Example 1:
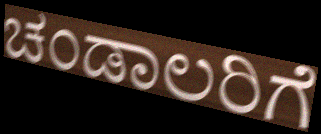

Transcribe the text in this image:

ಚಂಡಾಲರಿಗೆ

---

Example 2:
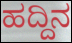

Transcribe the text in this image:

ಹದ್ದಿನ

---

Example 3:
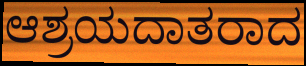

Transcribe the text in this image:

ಆಶ್ರಯದಾತರಾದ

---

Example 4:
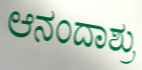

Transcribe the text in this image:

ಆನಂದಾಶ್ರು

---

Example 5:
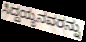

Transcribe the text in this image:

ಸಿದ್ದಯ್ಯನವರನ್ನು